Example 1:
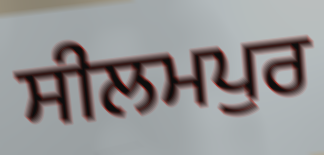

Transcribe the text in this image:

ਸੀਲਮਪੁਰ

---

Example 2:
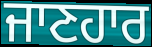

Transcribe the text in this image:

ਜਾਣਹਾਰ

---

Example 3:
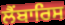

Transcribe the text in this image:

ਲੈਂਬਾਰਿਸ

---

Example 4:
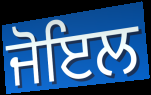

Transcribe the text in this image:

ਜੋਇਲ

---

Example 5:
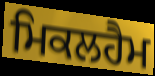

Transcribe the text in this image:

ਮਿਕਲਹੈਮ